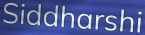
Siddharshi